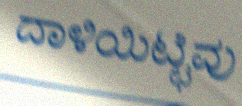
ದಾಳಿಯಿಟ್ಟೆವು